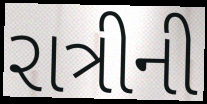
રાત્રીની